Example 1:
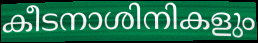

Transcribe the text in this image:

കീടനാശിനികളും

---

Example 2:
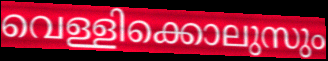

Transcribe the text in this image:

വെള്ളിക്കൊലുസും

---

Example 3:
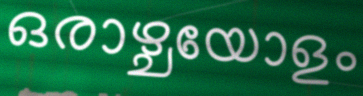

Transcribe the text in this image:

ഒരാഴ്ചയോളം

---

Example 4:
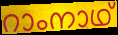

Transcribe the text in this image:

റാംനാഥ്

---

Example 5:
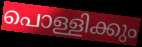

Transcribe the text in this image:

പൊള്ളിക്കും